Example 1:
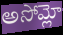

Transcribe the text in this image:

అసోమ్లో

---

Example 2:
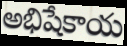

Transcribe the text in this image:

అభిషేకాయ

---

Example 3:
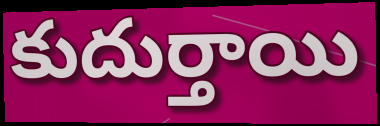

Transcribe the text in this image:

కుదుర్తాయి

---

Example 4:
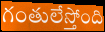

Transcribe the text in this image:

గంతులేస్తోంది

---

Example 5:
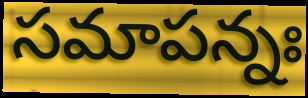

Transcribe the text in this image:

సమాపన్నః